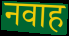
नवाह